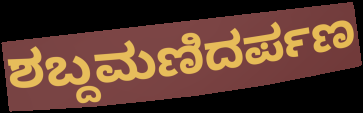
ಶಬ್ದಮಣಿದರ್ಪಣ